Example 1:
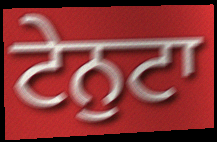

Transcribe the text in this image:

ਟੇਨੁਟਾ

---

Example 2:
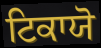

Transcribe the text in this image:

ਟਿਕਾਯੋ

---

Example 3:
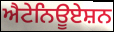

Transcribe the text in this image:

ਐਟੇਨਿਊਏਸ਼ਨ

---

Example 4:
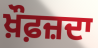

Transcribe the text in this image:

ਖ਼ੌਫ਼ਜ਼ਦਾ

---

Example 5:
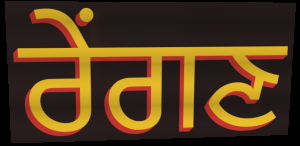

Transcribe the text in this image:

ਰੇਂਗਣ